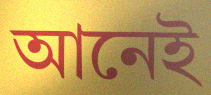
আনেই